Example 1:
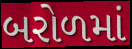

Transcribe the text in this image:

બરોળમાં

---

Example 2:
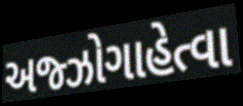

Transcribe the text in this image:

અજ્ઝોગાહેત્વા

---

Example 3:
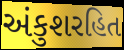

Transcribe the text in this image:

અંકુશરહિત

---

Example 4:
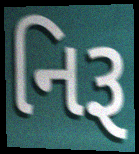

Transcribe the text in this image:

નિરૂ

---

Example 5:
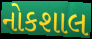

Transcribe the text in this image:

નોકશાલ